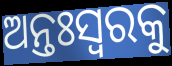
ଅନ୍ତଃସ୍ୱରକୁ